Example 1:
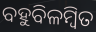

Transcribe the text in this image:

ବହୁବିଳମ୍ବିତ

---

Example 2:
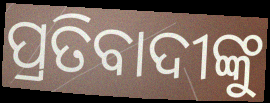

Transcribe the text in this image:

ପ୍ରତିବାଦୀଙ୍କୁ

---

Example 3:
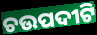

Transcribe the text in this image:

ଚଉପଦୀଟି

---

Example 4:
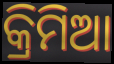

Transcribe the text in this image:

କ୍ରିମିଆ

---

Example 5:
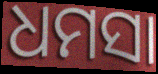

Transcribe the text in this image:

ଧମସା